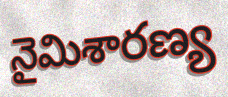
నైమిశారణ్య